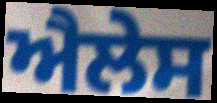
ਐਲੇਸ